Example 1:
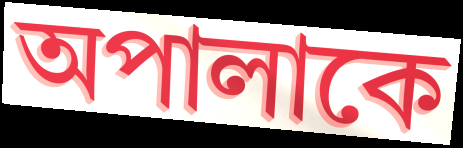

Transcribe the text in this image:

অপালাকে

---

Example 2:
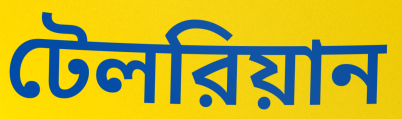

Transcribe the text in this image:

টেলরিয়ান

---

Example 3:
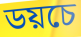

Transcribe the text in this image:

ডয়চে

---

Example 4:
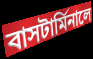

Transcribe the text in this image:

বাসটার্মিনালে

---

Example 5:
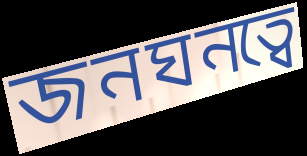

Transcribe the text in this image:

জনঘনত্বে